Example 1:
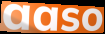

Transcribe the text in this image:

aaso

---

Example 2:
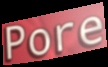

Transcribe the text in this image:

Pore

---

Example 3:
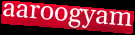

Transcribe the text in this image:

aaroogyam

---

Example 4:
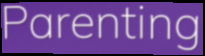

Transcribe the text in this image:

Parenting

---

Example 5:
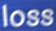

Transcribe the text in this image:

loss